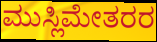
ಮುಸ್ಲಿಮೇತರರ